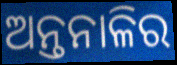
ଅନ୍ତନାଳିର